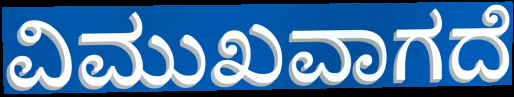
ವಿಮುಖವಾಗದೆ